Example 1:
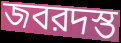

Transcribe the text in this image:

জবরদস্ত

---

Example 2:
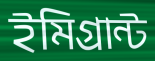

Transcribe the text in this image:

ইমিগ্রান্ট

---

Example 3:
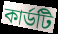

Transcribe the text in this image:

কার্ডটি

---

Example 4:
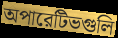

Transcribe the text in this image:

অপারেটিভগুলি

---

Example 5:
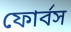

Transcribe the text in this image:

ফোর্বস